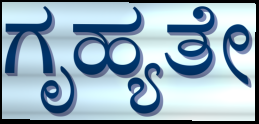
ಗೃಹ್ಯತೇ